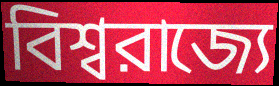
বিশ্বরাজ্যে